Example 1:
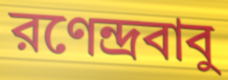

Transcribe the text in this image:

রণেন্দ্রবাবু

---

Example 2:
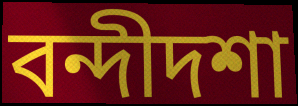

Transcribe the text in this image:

বন্দীদশা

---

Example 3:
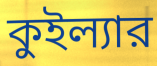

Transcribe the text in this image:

কুইল্যার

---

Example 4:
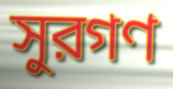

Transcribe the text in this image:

সুরগণ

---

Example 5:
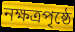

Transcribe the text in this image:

নক্ষত্রপৃষ্ঠে